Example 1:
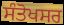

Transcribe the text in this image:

ਸੰਤੋਖਸਰ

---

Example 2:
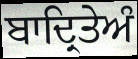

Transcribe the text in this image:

ਬਾਦ੍ਰਿਤੇਅੰ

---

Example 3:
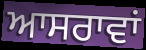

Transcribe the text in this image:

ਆਸਰਾਵਾਂ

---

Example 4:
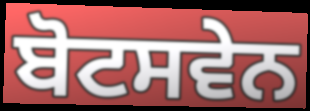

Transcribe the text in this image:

ਬੋਟਸਵੇਨ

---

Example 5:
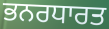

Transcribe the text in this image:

ਭਨਰਧਾਰਤ